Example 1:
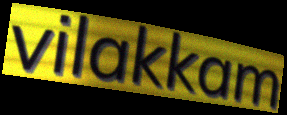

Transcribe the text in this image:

vilakkam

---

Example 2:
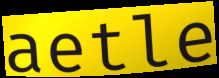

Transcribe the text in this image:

aetle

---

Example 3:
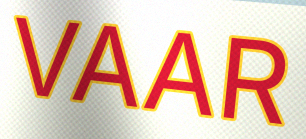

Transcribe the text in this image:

VAAR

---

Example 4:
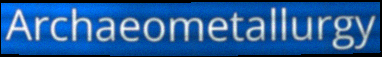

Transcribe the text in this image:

Archaeometallurgy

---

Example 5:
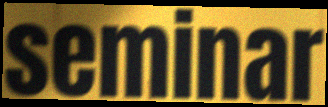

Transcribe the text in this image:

seminar